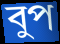
বুপ